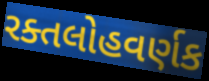
રક્તલોહવર્ણક